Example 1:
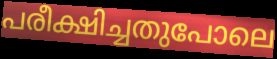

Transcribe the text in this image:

പരീക്ഷിച്ചതുപോലെ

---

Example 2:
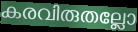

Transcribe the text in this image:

കരവിരുതല്ലോ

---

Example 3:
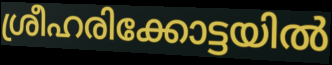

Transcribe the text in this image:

ശ്രീഹരിക്കോട്ടയിൽ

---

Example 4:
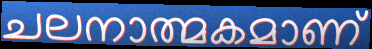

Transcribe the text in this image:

ചലനാത്മകമാണ്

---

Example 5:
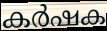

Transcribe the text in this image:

കർഷക